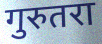
गुरुतरा